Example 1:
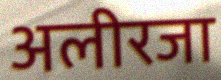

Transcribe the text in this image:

अलीरजा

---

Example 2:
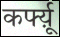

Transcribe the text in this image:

कर्फ्य़ू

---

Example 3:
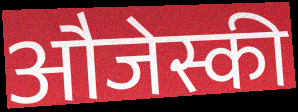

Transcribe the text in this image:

औजेस्की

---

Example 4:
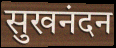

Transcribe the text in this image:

सुखनंदन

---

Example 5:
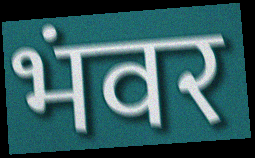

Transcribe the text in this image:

भंवर